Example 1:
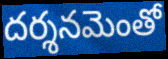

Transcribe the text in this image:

దర్శనమెంతో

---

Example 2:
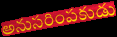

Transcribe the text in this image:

అనుసరింపకుడు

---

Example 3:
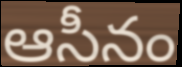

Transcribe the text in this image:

ఆసీనం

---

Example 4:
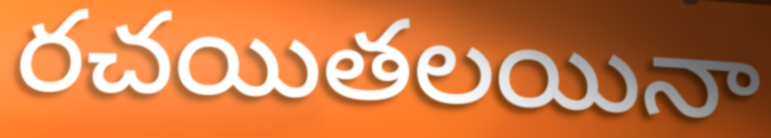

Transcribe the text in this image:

రచయితలయినా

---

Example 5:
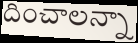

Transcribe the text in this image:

దించాలన్నా